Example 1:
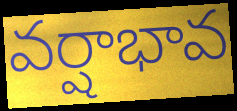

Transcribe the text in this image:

వర్షాభావ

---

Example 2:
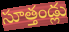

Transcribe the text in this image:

సూత్తండ్లు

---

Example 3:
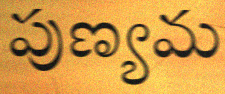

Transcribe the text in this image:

పుణ్యమ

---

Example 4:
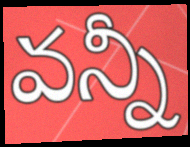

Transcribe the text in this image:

వన్నీ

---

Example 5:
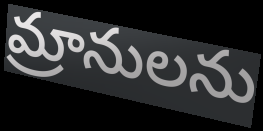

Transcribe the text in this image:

మ్రానులను